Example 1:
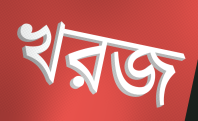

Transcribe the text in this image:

খরজ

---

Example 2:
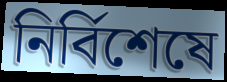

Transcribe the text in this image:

নির্বিশেষে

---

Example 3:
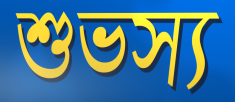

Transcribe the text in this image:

শুভস্য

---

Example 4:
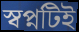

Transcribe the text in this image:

স্বপ্নটিই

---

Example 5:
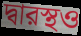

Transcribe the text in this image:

দ্বারস্থও